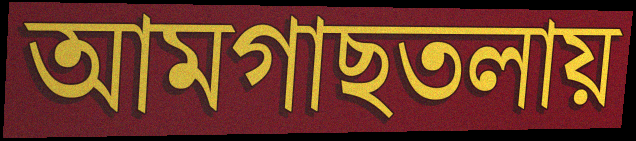
আমগাছতলায়